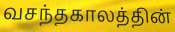
வசந்தகாலத்தின்